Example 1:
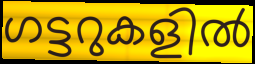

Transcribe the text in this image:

ഗട്ടറുകളിൽ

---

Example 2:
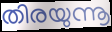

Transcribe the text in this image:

തിരയുന്നൂ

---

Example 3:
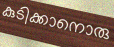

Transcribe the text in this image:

കുടിക്കാനൊരു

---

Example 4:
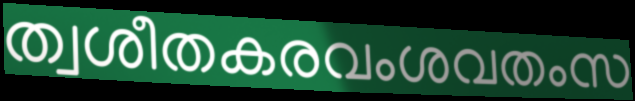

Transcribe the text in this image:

ത്വശീതകരവംശവതംസ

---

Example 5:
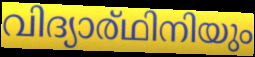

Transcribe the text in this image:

വിദ്യാര്ഥിനിയും